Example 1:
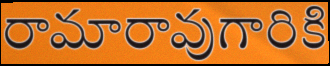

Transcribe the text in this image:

రామారావుగారికి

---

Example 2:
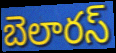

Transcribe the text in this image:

బెలారస్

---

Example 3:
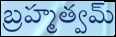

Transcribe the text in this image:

బ్రహ్మత్వమ్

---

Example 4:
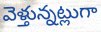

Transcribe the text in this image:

వెళ్తున్నట్లుగా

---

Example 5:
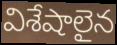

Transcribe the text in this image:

విశేషాలైన